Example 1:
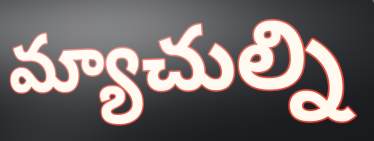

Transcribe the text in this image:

మ్యాచుల్ని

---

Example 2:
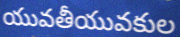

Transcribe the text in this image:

యువతీయువకుల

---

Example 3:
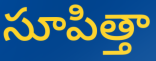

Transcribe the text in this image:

సూపిత్తా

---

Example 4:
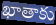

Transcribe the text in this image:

ఖాతాకు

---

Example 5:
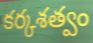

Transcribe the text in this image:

కర్కశత్వం